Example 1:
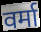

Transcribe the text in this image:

वर्मा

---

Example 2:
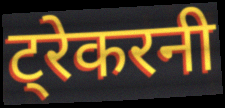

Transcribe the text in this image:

ट्रेकरनी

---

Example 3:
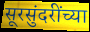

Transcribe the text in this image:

सूरसुंदरींच्या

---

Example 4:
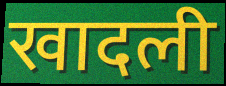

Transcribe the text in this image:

खादली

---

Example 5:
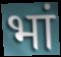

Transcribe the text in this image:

भां